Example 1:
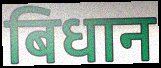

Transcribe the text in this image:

बिधान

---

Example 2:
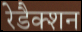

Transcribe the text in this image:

रेडैक्शन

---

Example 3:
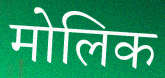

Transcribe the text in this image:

मोलिक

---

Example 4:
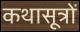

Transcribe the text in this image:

कथासूत्रों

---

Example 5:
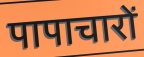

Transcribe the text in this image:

पापाचारों